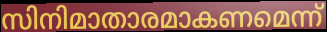
സിനിമാതാരമാകണമെന്ന്